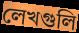
লেখগুলি